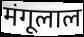
मंगूलाल